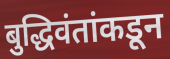
बुद्धिवंतांकडून